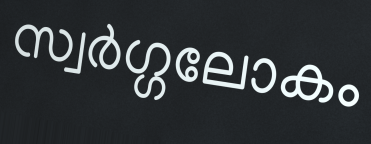
സ്വർഗ്ഗലോകം